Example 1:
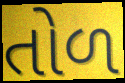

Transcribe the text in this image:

તોળ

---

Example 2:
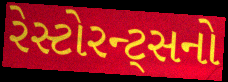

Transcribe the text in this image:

રેસ્ટોરન્ટ્સનો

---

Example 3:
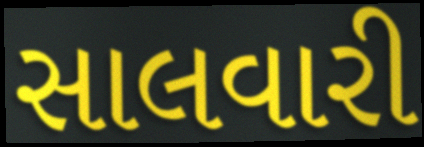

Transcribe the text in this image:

સાલવારી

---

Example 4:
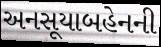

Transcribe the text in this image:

અનસૂયાબહેનની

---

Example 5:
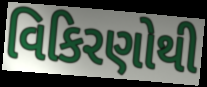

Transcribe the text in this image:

વિકિરણોથી